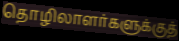
தொழிலாளர்களுக்குத்